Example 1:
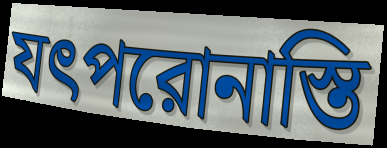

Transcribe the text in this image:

যৎপরোনাস্তি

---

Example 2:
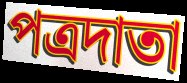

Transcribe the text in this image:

পত্রদাতা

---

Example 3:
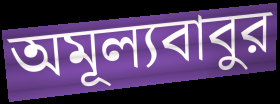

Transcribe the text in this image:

অমূল্যবাবুর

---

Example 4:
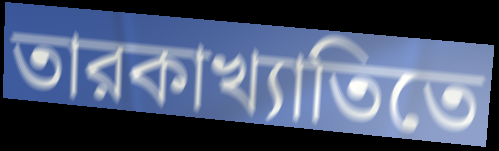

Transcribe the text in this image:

তারকাখ্যাতিতে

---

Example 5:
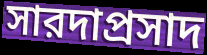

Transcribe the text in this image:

সারদাপ্রসাদ